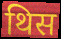
थिस